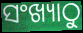
ସଂଖ୍ୟାଠୁ